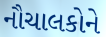
નૌચાલકોને